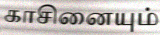
காசினையும்